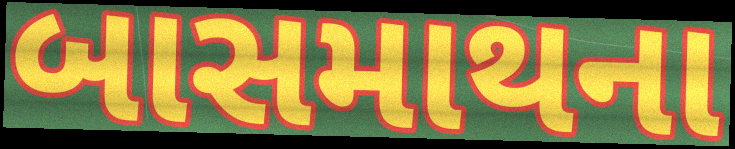
બાસમાથના